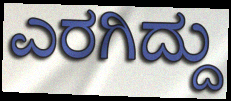
ಎರಗಿದ್ದು